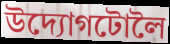
উদ্যোগটোলৈ